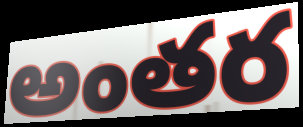
అంతర